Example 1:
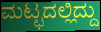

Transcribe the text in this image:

ಮಟ್ಟದಲ್ಲಿದ್ದು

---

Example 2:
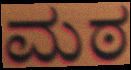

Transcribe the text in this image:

ಮಠ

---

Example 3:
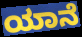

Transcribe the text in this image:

ಯಾನೆ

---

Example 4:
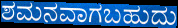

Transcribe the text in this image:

ಶಮನವಾಗಬಹುದು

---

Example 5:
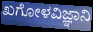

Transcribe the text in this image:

ಖಗೋಳವಿಜ್ಞಾನಿ